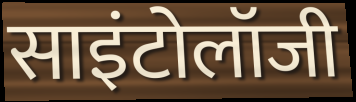
साइंटोलॉजी